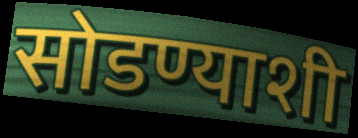
सोडण्याशी